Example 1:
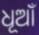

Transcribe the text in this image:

ଧୂଆଁ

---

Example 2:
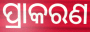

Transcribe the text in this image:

ପ୍ରାକରଣ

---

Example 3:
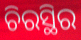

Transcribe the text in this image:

ଚିରସ୍ଥିର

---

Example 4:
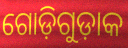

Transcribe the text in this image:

ଗୋଡ଼ିଗୁଡ଼ାକ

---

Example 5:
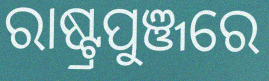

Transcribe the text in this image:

ରାଷ୍ଟ୍ରପୁଞ୍ଜରେ